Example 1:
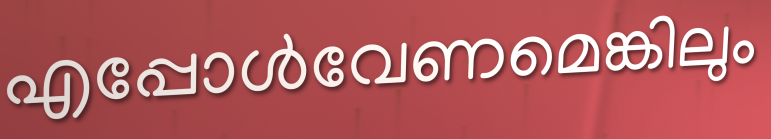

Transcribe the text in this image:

എപ്പോൾവേണമെങ്കിലും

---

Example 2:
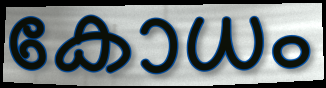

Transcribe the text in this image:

കോധം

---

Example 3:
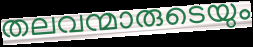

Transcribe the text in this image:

തലവന്മാരുടെയും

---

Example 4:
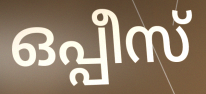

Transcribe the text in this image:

ഒപ്പീസ്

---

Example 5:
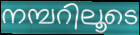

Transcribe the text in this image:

നമ്പറിലൂടെ